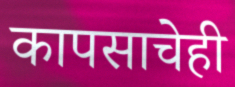
कापसाचेही